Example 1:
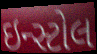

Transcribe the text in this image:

ઇન્સ્ટોલ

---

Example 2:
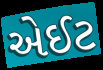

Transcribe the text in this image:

એઈટ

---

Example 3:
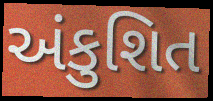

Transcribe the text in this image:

અંકુશિત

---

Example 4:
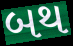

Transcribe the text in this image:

બથ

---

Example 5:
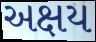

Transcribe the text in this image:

અક્ષય